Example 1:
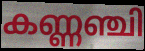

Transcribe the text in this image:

കണ്ണഞ്ചി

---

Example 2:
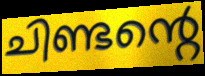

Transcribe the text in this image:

ചിണ്ടന്റെ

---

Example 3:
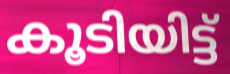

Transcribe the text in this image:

കൂടിയിട്ട്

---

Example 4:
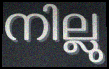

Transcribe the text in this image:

നില്ലു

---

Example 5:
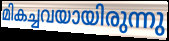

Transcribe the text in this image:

മികച്ചവയായിരുന്നു